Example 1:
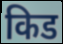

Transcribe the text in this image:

किड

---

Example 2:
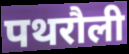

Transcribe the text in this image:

पथरौली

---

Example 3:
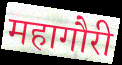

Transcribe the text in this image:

महागौरी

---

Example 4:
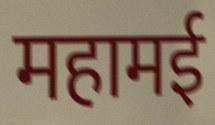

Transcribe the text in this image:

महामई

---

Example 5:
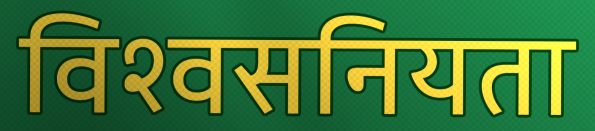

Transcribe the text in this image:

विश्वसनियता